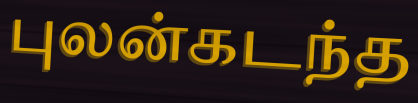
புலன்கடந்த